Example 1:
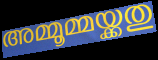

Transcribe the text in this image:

അമ്മൂമ്മയ്ക്കതു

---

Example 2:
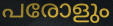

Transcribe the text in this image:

പരോളും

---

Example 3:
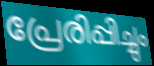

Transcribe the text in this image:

പ്രേരിപ്പിച്ചും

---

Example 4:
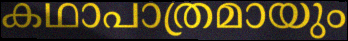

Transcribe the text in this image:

കഥാപാത്രമായും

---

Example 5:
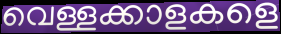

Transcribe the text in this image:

വെള്ളക്കാളകളെ